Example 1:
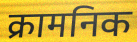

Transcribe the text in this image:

क्रामनिक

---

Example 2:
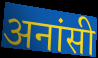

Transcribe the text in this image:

अनांसी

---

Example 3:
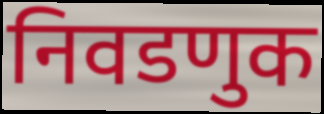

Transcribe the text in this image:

निवडणुक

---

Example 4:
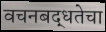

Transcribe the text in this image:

वचनबद्धतेचा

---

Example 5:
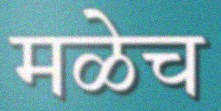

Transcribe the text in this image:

मळेच